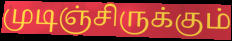
முடிஞ்சிருக்கும்